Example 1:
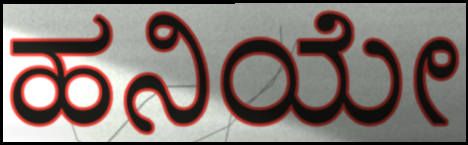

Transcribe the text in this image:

ಹನಿಯೇ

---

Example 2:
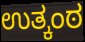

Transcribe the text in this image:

ಉತ್ಕಂಠ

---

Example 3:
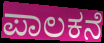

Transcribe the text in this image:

ಪಾಲಕನೆ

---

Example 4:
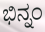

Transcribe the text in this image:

ಭಿನ್ನಂ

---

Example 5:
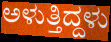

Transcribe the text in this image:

ಅಳುತ್ತಿದ್ದಳು